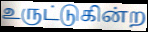
உருட்டுகின்ற